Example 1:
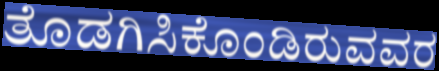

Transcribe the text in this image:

ತೊಡಗಿಸಿಕೊಂಡಿರುವವರ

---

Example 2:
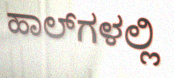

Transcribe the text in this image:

ಹಾಲ್‌ಗಳಲ್ಲಿ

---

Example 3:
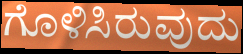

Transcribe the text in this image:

ಗೊಳಿಸಿರುವುದು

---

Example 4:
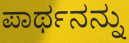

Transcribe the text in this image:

ಪಾರ್ಥನನ್ನು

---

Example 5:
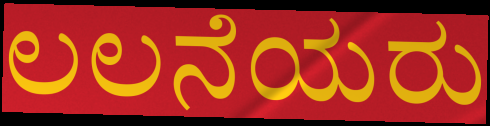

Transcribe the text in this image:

ಲಲನೆಯರು